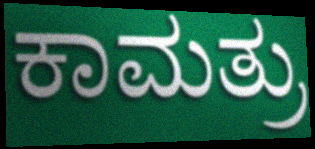
ಕಾಮತ್ರು